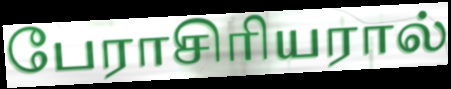
பேராசிரியரால்